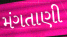
મંગતાણી